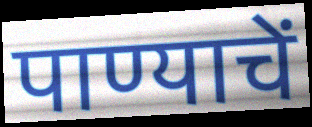
पाण्याचें